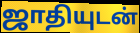
ஜாதியுடன்